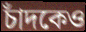
চাঁদকেও